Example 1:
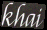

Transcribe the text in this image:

khai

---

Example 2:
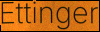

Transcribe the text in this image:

Ettinger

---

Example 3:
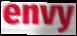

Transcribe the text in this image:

envy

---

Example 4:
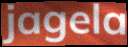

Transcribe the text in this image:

jagela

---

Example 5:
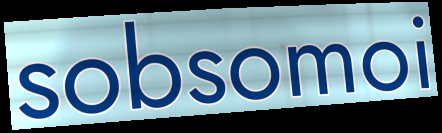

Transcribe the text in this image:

sobsomoi